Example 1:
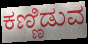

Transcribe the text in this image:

ಕಣ್ಣಿಡುವ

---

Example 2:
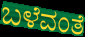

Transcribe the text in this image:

ಬಳೆವಂತೆ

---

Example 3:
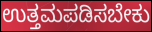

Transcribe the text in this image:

ಉತ್ತಮಪಡಿಸಬೇಕು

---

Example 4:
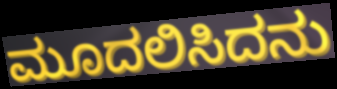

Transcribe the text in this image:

ಮೂದಲಿಸಿದನು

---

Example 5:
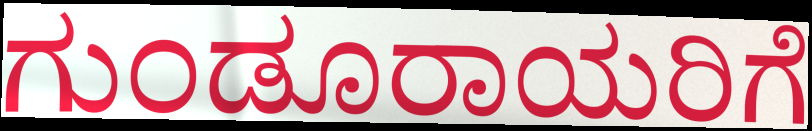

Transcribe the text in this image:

ಗುಂಡೂರಾಯರಿಗೆ